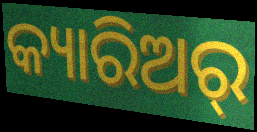
କ୍ୟାରିଅର୍